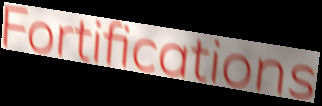
Fortifications